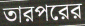
তারপরের